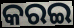
କରଇ